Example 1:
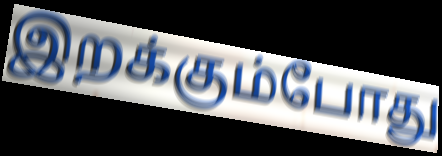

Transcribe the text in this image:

இறக்கும்போது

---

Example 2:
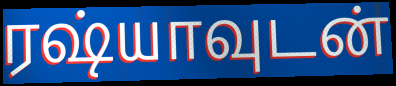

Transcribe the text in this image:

ரஷ்யாவுடன்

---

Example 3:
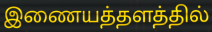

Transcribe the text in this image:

இணையத்தளத்தில்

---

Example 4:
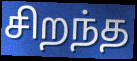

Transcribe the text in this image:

சிறந்த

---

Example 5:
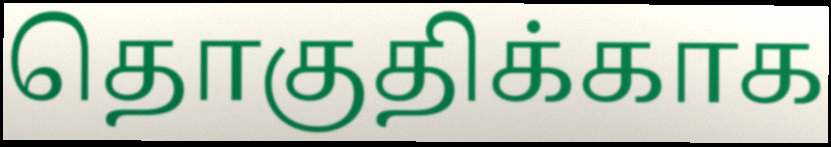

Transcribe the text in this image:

தொகுதிக்காக